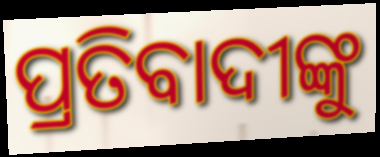
ପ୍ରତିବାଦୀଙ୍କୁ